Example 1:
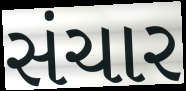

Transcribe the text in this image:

સંચાર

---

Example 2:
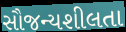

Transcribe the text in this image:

સૌજન્યશીલતા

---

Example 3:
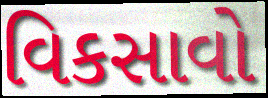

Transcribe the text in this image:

વિકસાવો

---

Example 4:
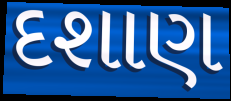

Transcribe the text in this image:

દશાણ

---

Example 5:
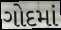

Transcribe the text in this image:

ગોદમાં